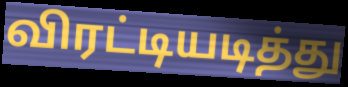
விரட்டியடித்து